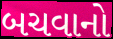
બચવાનો